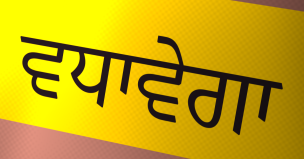
ਵਧਾਵੇਗਾ